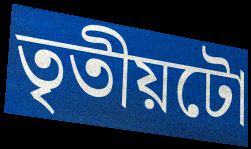
তৃতীয়টো